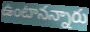
ఉంటానన్నారు